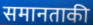
समानताकी